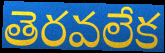
తెరవలేక